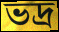
ভদ্ৰ